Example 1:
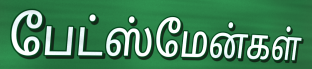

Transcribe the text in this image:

பேட்ஸ்மேன்கள்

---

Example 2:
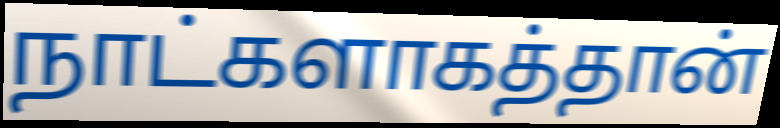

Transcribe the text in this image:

நாட்களாகத்தான்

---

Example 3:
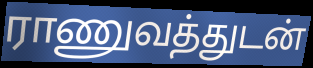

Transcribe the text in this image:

ராணுவத்துடன்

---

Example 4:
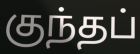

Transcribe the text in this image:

குந்தப்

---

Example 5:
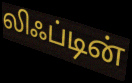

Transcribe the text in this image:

லிஃப்டின்